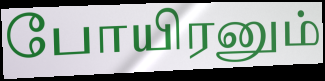
போயிரனும்